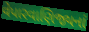
વેપારવાણિજ્યનાં